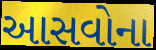
આસવોના